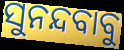
ସୁନନ୍ଦବାବୁ